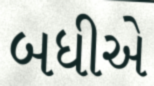
બધીએ